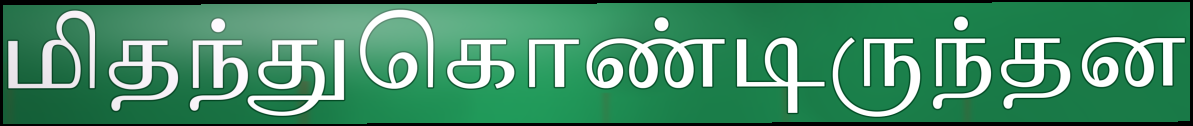
மிதந்துகொண்டிருந்தன